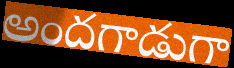
అందగాడుగా